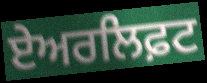
ਏਅਰਲਿਫ਼ਟ